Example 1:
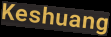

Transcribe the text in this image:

Keshuang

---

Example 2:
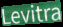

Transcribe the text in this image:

Levitra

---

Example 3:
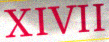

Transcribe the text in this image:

XIVII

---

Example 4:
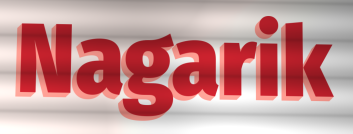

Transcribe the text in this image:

Nagarik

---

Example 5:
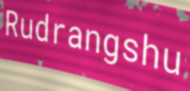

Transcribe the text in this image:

Rudrangshu